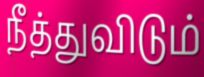
நீத்துவிடும்